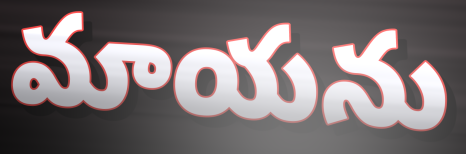
మాయను